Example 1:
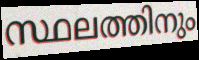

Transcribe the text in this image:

സ്ഥലത്തിനും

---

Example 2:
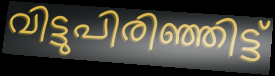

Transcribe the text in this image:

വിട്ടുപിരിഞ്ഞിട്ട്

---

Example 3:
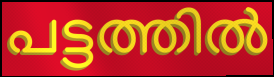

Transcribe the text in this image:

പട്ടത്തിൽ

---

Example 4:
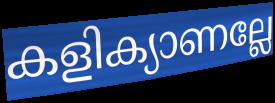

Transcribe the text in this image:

കളിക്യാണല്ലേ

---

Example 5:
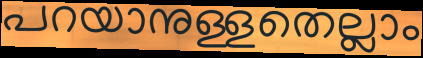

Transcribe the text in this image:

പറയാനുള്ളതെല്ലാം